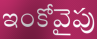
ఇంకోవైపు